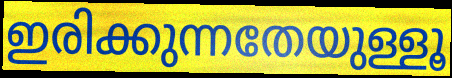
ഇരിക്കുന്നതേയുള്ളൂ